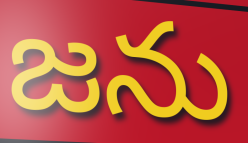
జను